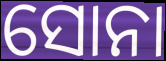
ସୋନା